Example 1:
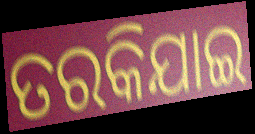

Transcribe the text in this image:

ତରକିଯାଇ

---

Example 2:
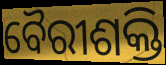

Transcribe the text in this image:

ବୈରୀଶକ୍ତି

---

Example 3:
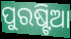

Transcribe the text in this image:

ପୁରଷ୍ଟିଆ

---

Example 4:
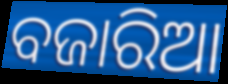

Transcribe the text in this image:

ବଜାରିଆ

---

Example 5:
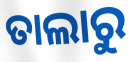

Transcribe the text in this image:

ତାଲାରୁ